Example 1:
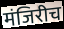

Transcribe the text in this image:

मंजिरीच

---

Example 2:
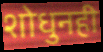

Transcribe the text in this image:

शोधुनही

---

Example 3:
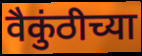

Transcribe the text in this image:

वैकुंठीच्या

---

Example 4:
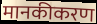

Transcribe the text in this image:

मानकीकरण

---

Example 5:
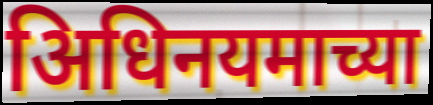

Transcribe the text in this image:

अिधिनयमाच्या